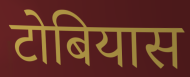
टोबियास